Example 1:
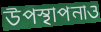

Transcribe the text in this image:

উপস্থাপনাও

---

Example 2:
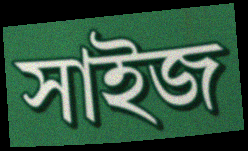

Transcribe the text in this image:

সাইজ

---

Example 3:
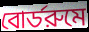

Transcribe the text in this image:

বোর্ডরুমে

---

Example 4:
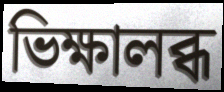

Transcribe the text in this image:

ভিক্ষালব্ধ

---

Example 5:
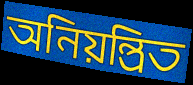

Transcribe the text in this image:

অনিয়ন্ত্রিত